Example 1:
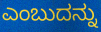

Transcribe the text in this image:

ಎಂಬುದನ್ನು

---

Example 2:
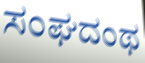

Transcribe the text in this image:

ಸಂಘದಂಥ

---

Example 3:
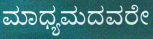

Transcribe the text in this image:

ಮಾಧ್ಯಮದವರೇ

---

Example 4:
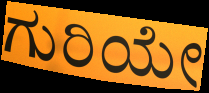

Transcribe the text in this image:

ಗುರಿಯೇ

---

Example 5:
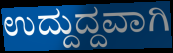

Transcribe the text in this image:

ಉದ್ದುದ್ದವಾಗಿ